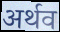
अर्थव